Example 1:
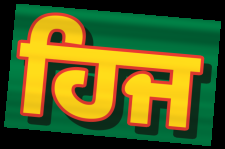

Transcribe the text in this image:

ਹਿਜ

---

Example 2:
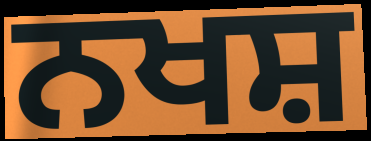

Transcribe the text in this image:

ਨਖਸ਼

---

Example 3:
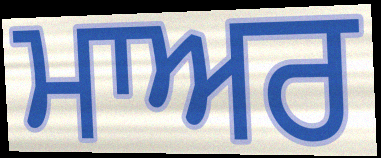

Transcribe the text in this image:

ਮਾਅਰ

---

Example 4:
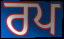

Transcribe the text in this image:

ਰਪ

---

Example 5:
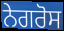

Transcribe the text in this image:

ਨੇਗਰੋਸ